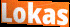
Lokas